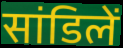
सांडिलें